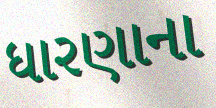
ધારણાના